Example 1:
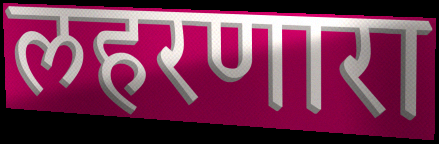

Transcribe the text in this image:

लहरणारा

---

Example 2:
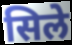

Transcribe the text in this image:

सिले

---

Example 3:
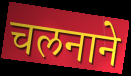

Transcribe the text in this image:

चलनाने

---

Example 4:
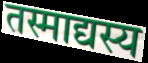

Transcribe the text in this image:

तस्माद्यस्य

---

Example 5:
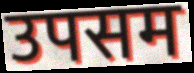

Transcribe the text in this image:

उपसम